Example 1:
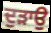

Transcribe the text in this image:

ਦੁੜਾਉ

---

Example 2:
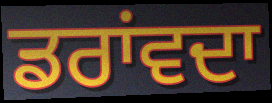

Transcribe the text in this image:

ਡਰਾਂਵਦਾ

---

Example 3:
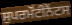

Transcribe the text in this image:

ਸੁਪਰਮੌਂਟੀਨੈਂਟਸ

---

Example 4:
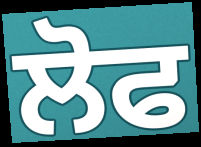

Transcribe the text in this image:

ਲੋਫ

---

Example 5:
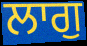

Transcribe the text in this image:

ਲਾਗੁ